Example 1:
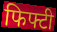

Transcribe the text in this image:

फिफ्टी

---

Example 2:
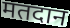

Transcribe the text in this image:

मतदान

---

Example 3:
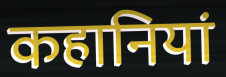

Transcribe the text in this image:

कहानियां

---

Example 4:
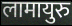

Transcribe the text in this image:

लामायुरु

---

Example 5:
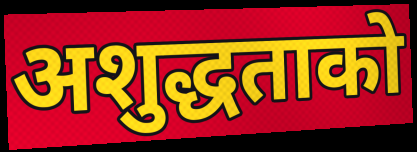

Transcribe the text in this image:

अशुद्धताको